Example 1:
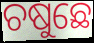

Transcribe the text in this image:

ଚଷୁଛେ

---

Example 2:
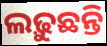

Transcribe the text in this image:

ଲଢ଼ୁଛନ୍ତି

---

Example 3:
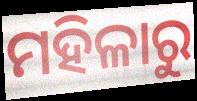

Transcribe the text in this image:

ମହିଳାରୁ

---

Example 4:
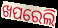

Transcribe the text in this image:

ଖପରେଲି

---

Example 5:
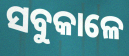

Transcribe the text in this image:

ସବୁକାଳେ